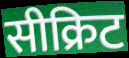
सीक्रिट